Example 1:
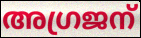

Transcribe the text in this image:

അഗ്രജന്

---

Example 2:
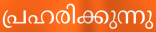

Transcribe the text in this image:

പ്രഹരിക്കുന്നു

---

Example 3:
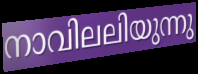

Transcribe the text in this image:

നാവിലലിയുന്നു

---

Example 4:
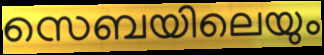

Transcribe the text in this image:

സെബയിലെയും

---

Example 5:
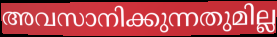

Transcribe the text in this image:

അവസാനിക്കുന്നതുമില്ല